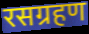
रसग्रहण